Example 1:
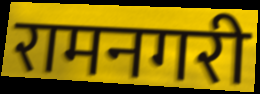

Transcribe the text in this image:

रामनगरी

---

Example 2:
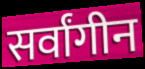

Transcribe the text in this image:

सर्वांगीन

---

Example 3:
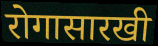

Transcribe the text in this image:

रोगासारखी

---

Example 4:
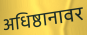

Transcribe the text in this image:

अधिष्ठानावर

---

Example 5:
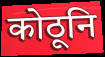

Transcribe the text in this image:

कोठूनि